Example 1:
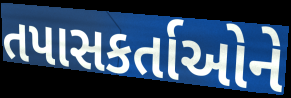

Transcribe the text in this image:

તપાસકર્તાઓને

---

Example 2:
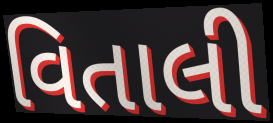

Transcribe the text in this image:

વિતાલી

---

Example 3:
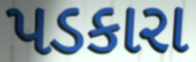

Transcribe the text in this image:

પડકારા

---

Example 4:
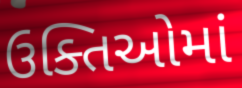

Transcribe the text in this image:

ઉક્તિઓમાં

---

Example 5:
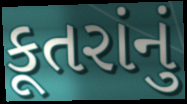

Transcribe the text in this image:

કૂતરાંનું